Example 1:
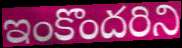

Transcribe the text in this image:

ఇంకొందరిని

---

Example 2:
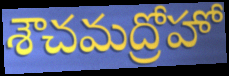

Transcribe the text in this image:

శౌచమద్రోహో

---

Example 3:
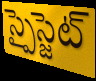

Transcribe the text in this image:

స్పైస్జెట్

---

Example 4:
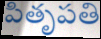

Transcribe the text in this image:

పితృపతి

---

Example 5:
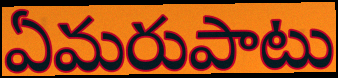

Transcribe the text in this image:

ఏమరుపాటు